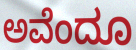
ಅವೆಂದೂ